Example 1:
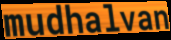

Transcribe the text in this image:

mudhalvan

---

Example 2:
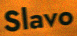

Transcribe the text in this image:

Slavo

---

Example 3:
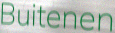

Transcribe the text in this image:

Buitenen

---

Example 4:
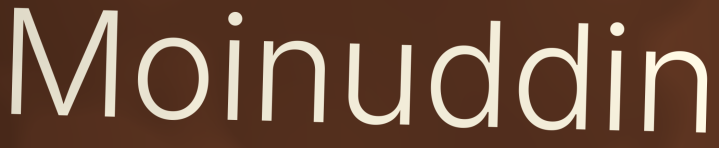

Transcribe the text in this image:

Moinuddin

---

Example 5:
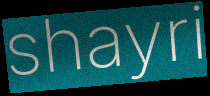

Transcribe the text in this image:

shayri